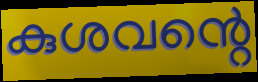
കുശവന്റെ